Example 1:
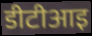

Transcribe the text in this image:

डीटीआइ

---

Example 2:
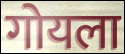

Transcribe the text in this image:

गोयला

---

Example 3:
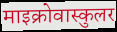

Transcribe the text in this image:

माइक्रोवास्कुलर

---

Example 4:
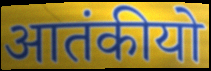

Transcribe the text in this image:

आतंकीयो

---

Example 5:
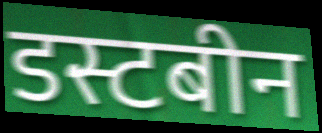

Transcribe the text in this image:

डस्टबीन